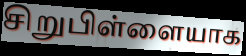
சிறுபிள்ளையாக